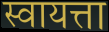
स्वायत्ता